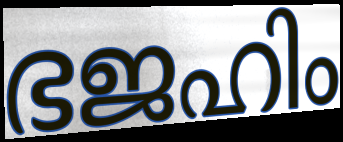
ഭജഹിം